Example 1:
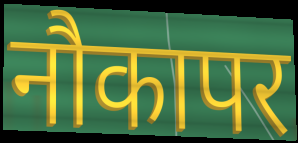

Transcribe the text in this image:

नौकापर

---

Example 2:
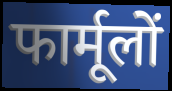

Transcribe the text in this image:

फार्मूलों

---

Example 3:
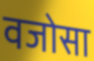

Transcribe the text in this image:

वजोसा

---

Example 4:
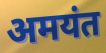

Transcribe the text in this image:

अमयंत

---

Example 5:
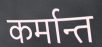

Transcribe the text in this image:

कर्मान्त